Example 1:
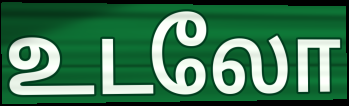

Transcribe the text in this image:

உடலோ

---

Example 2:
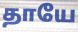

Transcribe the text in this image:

தாயே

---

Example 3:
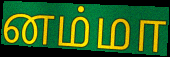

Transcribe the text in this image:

னம்மா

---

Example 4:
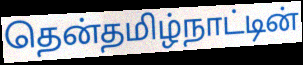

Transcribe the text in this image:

தென்தமிழ்நாட்டின்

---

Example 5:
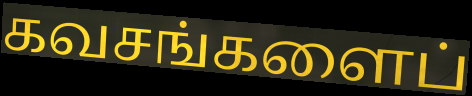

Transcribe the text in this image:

கவசங்களைப்